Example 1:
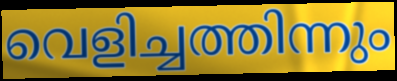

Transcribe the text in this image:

വെളിച്ചത്തിന്നും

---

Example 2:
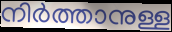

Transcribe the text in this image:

നിർത്താനുള്ള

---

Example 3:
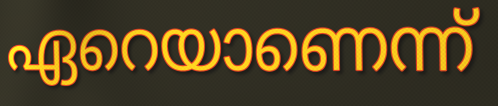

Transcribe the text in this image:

ഏറെയാണെന്ന്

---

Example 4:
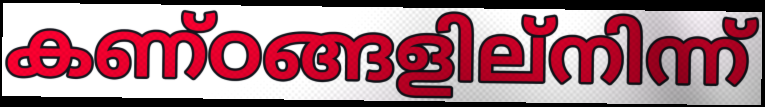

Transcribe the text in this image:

കണ്ഠങ്ങളില്നിന്ന്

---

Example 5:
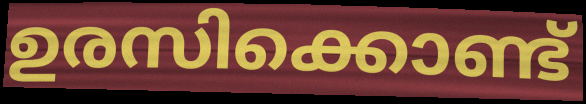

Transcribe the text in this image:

ഉരസിക്കൊണ്ട്